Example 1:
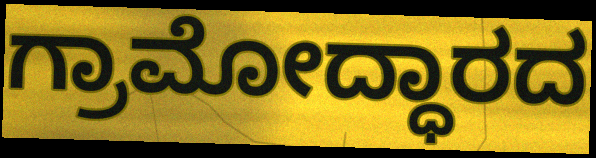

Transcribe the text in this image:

ಗ್ರಾಮೋದ್ಧಾರದ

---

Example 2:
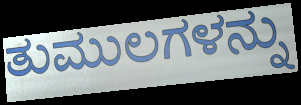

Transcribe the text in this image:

ತುಮುಲಗಳನ್ನು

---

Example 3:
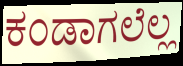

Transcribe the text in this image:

ಕಂಡಾಗಲೆಲ್ಲ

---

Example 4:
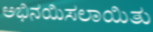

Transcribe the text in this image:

ಅಭಿನಯಿಸಲಾಯಿತು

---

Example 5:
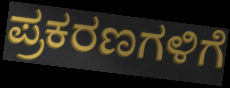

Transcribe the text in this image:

ಪ್ರಕರಣಗಳಿಗೆ